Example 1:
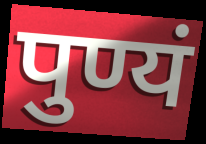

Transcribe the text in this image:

पुण्यं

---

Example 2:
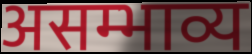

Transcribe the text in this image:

असम्भाव्य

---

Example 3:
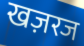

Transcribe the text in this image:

खज़रज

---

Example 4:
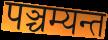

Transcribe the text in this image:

पञ्चम्यन्त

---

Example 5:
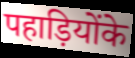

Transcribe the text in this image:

पहाड़ियोंके